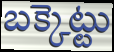
బక్కెట్టు